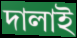
দালাই